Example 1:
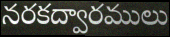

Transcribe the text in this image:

నరకద్వారములు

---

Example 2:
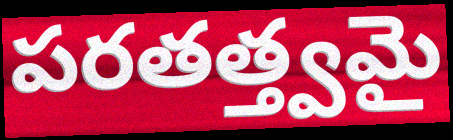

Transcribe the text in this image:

పరతత్త్వమై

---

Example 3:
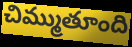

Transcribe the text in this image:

చిమ్ముతూంది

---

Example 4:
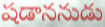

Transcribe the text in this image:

షడాననుడు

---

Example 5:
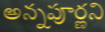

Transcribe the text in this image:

అన్నపూర్ణని